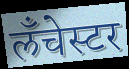
लँचेस्टर